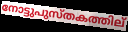
നോട്ടുപുസ്തകത്തില്